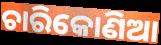
ଚାରିକୋଣିଆ